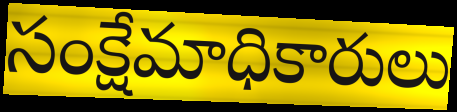
సంక్షేమాధికారులు